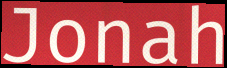
Jonah